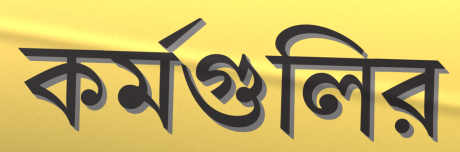
কর্মগুলির